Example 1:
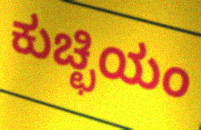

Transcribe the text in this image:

ಕುಚ್ಛಿಯಂ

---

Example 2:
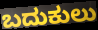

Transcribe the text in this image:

ಬದುಕುಲು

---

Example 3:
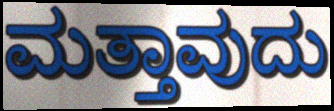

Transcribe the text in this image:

ಮತ್ತಾವುದು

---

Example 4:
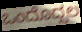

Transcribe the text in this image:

ಒಂದೊದ್ಸಲ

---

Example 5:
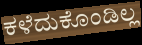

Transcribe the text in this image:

ಕಳೆದುಕೊಂಡಿಲ್ಲ